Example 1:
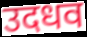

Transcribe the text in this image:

उदधव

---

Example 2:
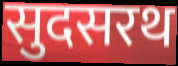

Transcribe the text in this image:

सुदसरथ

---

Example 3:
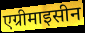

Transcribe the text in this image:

एग्रीमाइसीन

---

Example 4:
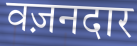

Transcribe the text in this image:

वज़नदार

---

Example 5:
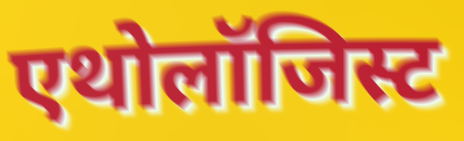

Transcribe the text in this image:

एथोलॉजिस्ट